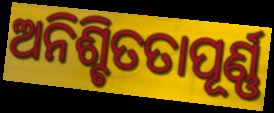
ଅନିଶ୍ଚିତତାପୂର୍ଣ୍ଣ